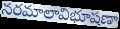
నరమాలావిభూషణా